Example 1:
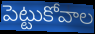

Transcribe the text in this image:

పెట్టుకోవాల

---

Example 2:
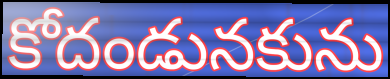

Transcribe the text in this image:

కోదండునకును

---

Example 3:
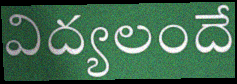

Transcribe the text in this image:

విద్యలందే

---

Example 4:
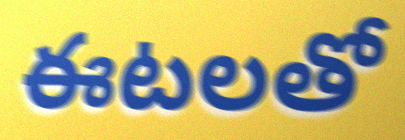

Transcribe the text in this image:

ఈటలతో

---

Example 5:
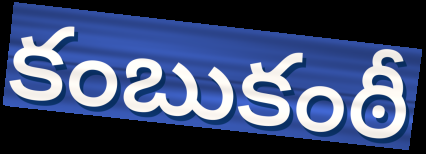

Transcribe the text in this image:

కంబుకంఠీ